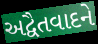
અદ્વૈતવાદને